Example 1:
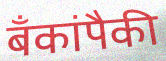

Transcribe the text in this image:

बँकांपैकी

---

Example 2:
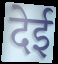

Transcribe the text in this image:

देई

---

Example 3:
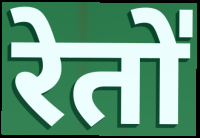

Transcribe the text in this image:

रेतो॑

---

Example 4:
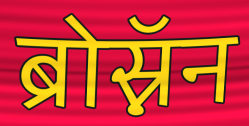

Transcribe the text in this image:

ब्रोस्नॅन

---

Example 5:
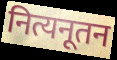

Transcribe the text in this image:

नित्यनूतन